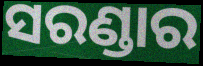
ସରଣ୍ଡାର